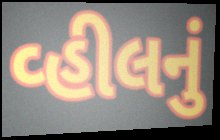
વ્હીલનું